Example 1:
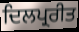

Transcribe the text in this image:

ਦਿਲਪ੍ਰਰੀਤ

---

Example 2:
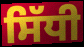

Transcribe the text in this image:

ਸਿੱਧੀ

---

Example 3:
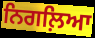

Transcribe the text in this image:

ਨਿਗਲ਼ਿਆ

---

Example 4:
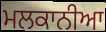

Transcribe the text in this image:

ਮਲਕਾਨੀਆ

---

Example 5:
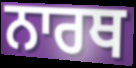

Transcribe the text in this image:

ਨਾਰਥ